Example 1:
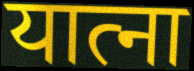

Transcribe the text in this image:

यात्ना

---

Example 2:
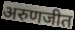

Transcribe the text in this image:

अरुणजीत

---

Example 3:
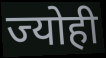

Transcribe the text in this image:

ज्योही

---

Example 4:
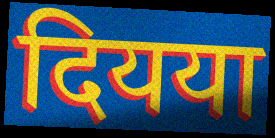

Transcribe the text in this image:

दियया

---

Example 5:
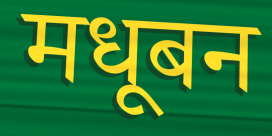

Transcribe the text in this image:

मधूबन